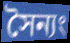
সৈন্যং